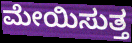
ಮೇಯಿಸುತ್ತ